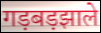
गड़बड़झाले